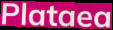
Plataea